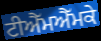
ਟੀਐੱਮਐੱਮਕੇ